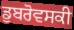
ਡੁਬਰੋਵਸਕੀ